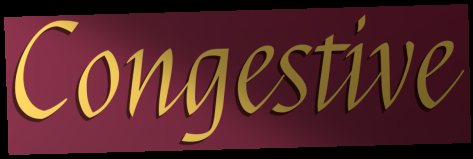
Congestive